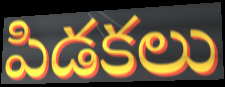
పిడకలు